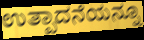
ಉತ್ಪಾದನೆಯನ್ನೂ